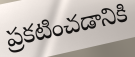
ప్రకటించడానికి